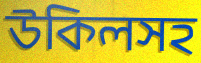
উকিলসহ